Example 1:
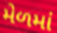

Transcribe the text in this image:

મેળમાં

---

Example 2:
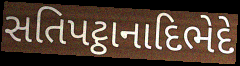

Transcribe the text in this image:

સતિપટ્ઠાનાદિભેદે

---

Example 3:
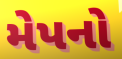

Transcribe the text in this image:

મેપનો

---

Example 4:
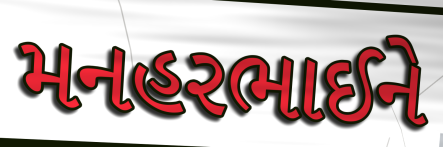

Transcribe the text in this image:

મનહરભાઈને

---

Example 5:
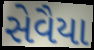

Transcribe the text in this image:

સેવૈયા